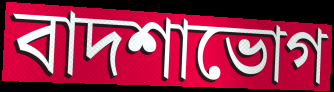
বাদশাভোগ